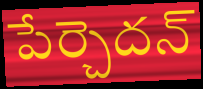
పేర్చెదన్